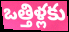
ఒత్తిళ్లకు